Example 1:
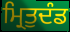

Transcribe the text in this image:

ਮ੍ਰਿਤੁਦੰਡ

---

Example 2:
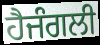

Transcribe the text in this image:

ਹੈਜੰਗਲੀ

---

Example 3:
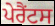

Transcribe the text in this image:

ਪੇਰੈਂਟਸ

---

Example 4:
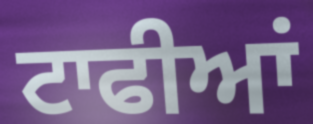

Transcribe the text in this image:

ਟਾਫੀਆਂ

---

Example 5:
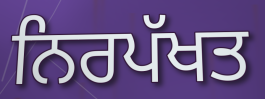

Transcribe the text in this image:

ਨਿਰਪੱਖਤ